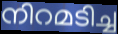
നിറമടിച്ച